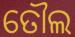
ତୌଲ